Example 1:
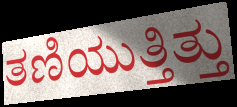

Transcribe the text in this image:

ತಣಿಯುತ್ತಿತ್ತು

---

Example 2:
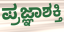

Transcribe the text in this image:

ಪ್ರಜ್ಞಾಶಕ್ತಿ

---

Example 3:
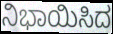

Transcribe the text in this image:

ನಿಭಾಯಿಸಿದ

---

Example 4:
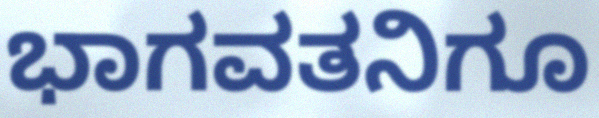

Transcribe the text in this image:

ಭಾಗವತನಿಗೂ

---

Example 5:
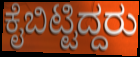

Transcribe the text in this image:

ಕೈಬಿಟ್ಟಿದ್ದರು